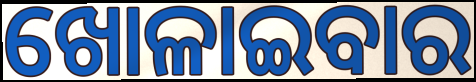
ଖୋଳାଇବାର